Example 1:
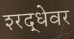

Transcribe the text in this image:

श्रद्धेवर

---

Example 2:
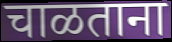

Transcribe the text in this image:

चाळताना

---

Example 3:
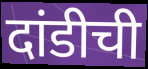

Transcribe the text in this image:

दांडीची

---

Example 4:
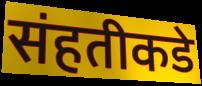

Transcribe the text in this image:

संहतीकडे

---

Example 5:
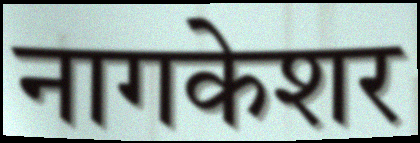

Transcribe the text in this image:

नागकेशर